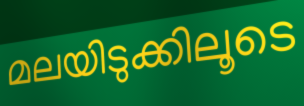
മലയിടുക്കിലൂടെ